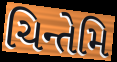
ચિન્તેમિ